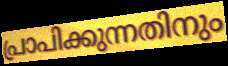
പ്രാപിക്കുന്നതിനും